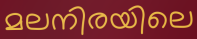
മലനിരയിലെ